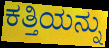
ಕತ್ತಿಯನ್ನು